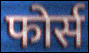
फोर्स